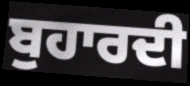
ਬੁਹਾਰਦੀ